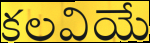
కలవియే